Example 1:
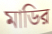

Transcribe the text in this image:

মাডির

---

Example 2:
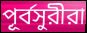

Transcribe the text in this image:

পূর্বসুরীরা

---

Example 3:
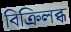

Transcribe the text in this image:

বিক্রিলব্ধ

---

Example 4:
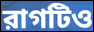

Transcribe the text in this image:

রাগটিও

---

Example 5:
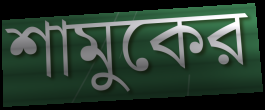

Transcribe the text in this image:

শামুকের